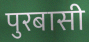
पुरबासी